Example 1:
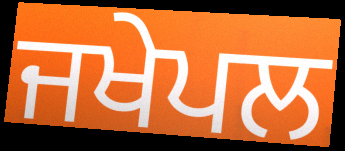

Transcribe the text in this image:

ਜਖੇਪਲ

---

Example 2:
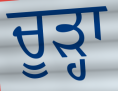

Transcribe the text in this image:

ਚੂੜ੍ਹਾ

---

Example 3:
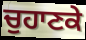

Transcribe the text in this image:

ਚੁਹਾਣਕੇ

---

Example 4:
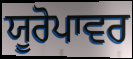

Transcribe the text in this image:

ਯੂਰੋਪਾਵਰ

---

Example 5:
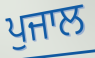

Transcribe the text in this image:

ਪੁਜਾਲ